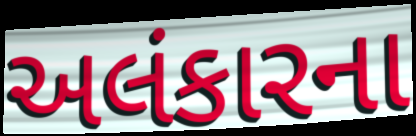
અલંકારના